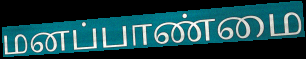
மனப்பாண்மை